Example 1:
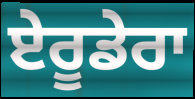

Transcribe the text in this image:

ਏਰੂਡੇਰਾ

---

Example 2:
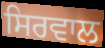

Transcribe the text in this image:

ਸਿਰਵਾਲ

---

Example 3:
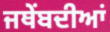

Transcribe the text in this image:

ਜਥੇਂਬਦੀਆਂ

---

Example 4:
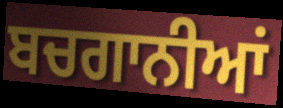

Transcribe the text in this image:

ਬਚਗਾਨੀਆਂ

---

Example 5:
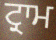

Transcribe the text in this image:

ਟ੍ਰਾਮ